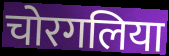
चोरगलिया